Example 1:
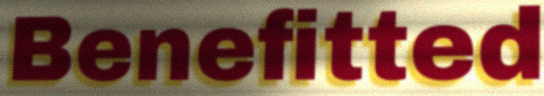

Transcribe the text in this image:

Benefitted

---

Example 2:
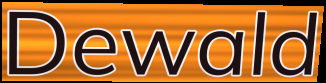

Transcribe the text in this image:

Dewald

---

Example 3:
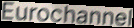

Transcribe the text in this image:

Eurochannel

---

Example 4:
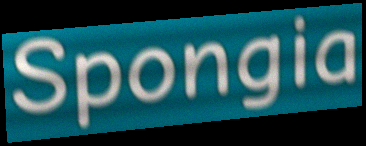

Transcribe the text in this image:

Spongia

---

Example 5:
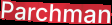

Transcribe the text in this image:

Parchman